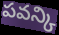
పవన్కి